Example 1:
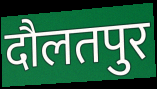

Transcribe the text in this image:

दौलतपुर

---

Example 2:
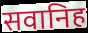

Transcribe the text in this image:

सवानिह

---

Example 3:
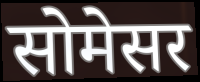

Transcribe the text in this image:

सोमेसर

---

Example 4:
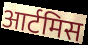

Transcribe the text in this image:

आर्टमिस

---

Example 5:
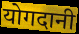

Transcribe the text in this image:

योगदानी